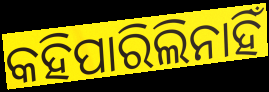
କହିପାରିଲିନାହିଁ